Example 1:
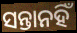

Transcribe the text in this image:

ସନ୍ତାନହିଁ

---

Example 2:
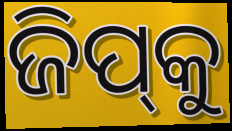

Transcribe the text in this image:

ଜିପ୍‍କୁ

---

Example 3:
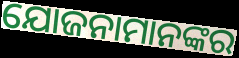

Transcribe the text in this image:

ଯୋଜନାମାନଙ୍କର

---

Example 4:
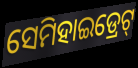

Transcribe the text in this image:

ସେମିହାଇଡ୍ରେଟ୍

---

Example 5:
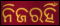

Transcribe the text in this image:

ନିଜରହିଁ